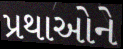
પ્રથાઓને